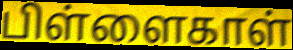
பிள்ளைகாள்